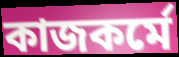
কাজকর্মে